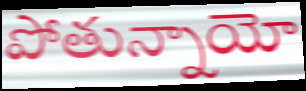
పోతున్నాయో